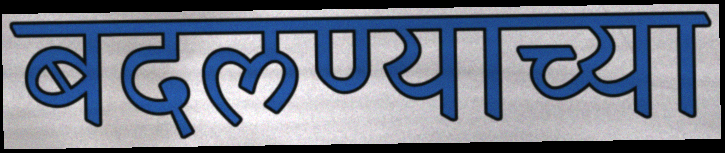
बदलण्याच्या